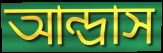
আন্দ্রাস